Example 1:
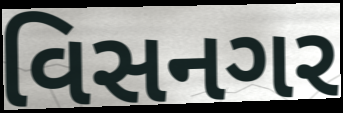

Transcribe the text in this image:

વિસનગર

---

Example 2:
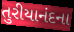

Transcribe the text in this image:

તુરીયાનંદના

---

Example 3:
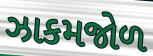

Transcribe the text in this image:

ઝાકમજોળ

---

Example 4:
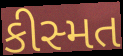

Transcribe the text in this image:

કીસ્મત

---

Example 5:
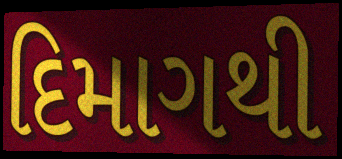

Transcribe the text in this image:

દિમાગથી